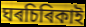
ঘৰচিৰিকাই